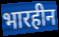
भारहीन